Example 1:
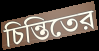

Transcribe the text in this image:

চিন্তিতের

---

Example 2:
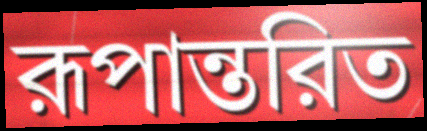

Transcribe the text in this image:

রূপান্তরিত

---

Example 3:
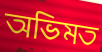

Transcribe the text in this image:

অভিমত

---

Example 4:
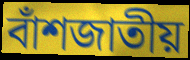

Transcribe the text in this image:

বাঁশজাতীয়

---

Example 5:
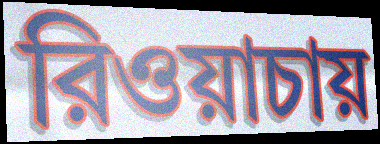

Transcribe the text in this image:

রিওয়াচায়